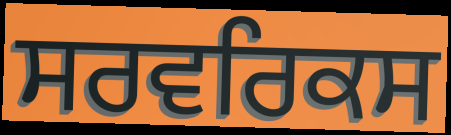
ਸਰਵਰਿਕਸ